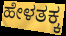
ಹೇಳತಕ್ಕ